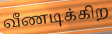
வீணடிக்கிற